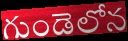
గుండెలోన